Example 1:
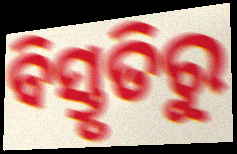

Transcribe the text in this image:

ବିସ୍ତୃତିରୁ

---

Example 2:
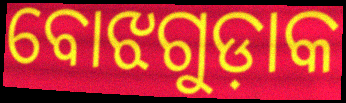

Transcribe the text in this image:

ବୋଝଗୁଡ଼ାକ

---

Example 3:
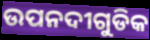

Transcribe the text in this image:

ଉପନଦୀଗୁଡିକ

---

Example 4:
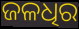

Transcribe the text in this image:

ଜଳଧିର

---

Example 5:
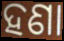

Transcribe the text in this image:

ହଣା